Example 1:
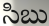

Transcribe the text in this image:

సిబు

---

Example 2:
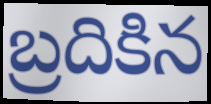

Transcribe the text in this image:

బ్రదికిన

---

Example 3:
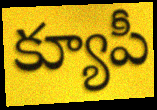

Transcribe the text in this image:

క్యూపీ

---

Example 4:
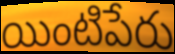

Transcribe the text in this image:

యింటిపేరు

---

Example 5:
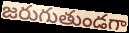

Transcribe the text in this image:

జరుగుతుండగా